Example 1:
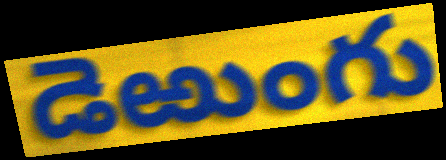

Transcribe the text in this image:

డెఱుంగు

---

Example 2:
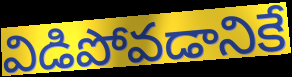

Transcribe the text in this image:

విడిపోవడానికే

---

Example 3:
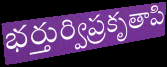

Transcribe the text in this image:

భర్తుర్విప్రకృతాపి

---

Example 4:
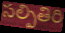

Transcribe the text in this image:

సల్పితిరి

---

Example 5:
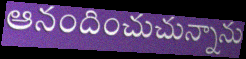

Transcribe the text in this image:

ఆనందించుచున్నాను